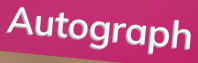
Autograph